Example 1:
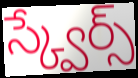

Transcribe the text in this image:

స్క్వేర్స్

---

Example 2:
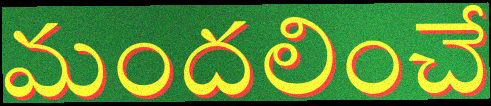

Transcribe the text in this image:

మందలించే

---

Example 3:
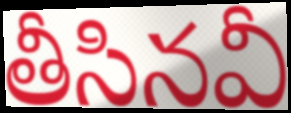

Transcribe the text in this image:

తీసినవీ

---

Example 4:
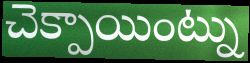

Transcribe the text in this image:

చెక్పాయింట్ను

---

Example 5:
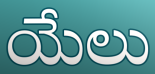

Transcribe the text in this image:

యేలు